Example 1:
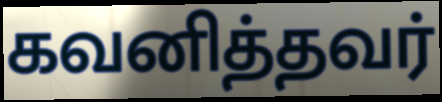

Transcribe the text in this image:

கவனித்தவர்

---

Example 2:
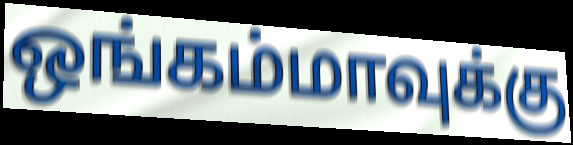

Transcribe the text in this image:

ஒங்கம்மாவுக்கு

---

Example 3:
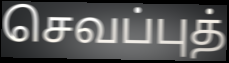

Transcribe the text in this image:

செவப்புத்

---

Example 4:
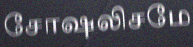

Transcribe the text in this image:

சோஷலிசமே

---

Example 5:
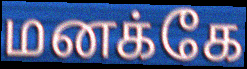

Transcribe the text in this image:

மனக்கே